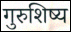
गुरुशिष्य